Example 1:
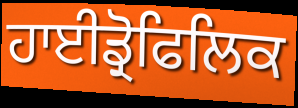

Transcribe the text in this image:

ਹਾਈਡ੍ਰੋਫਿਲਿਕ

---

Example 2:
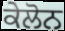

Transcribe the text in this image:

ਕੇਲੋਨ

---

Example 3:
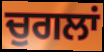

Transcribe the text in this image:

ਚੁਗਲਾਂ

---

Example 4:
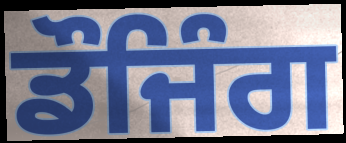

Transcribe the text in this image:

ਡੌਜਿੰਗ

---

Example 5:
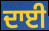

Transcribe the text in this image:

ਦਾਈ